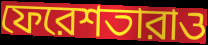
ফেরেশতারাও